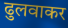
ढुलवाकर